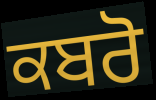
ਕਬਰੋ